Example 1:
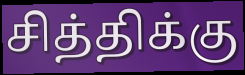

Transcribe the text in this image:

சித்திக்கு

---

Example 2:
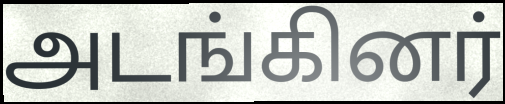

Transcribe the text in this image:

அடங்கினர்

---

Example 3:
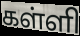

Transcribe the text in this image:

கள்ளி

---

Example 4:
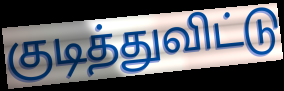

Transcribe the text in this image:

குடித்துவிட்டு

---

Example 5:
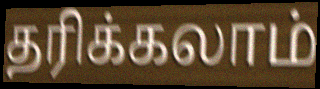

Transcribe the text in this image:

தரிக்கலாம்